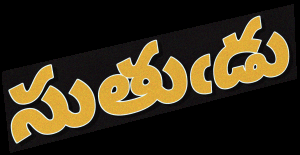
సుతుఁడు